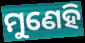
ମୁଣେହି